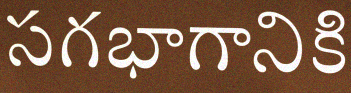
సగభాగానికి